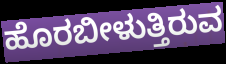
ಹೊರಬೀಳುತ್ತಿರುವ